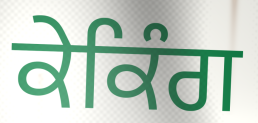
ਕੇਕਿੰਗ